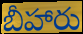
బీహారు